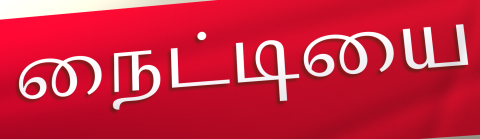
நைட்டியை